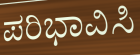
ಪರಿಭಾವಿಸಿ